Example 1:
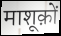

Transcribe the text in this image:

माशूक़ों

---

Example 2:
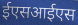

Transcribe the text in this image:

ईएसआईएस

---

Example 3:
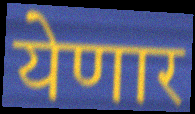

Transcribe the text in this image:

येणार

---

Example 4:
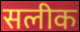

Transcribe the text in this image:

सलीक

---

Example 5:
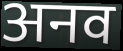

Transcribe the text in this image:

अनव